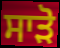
ਸਾੜੋ